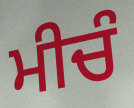
ਮੀਚੰ